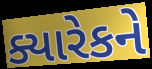
ક્યારેકને